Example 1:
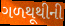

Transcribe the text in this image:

ગળથૂથીની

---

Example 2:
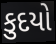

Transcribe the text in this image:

કુદયો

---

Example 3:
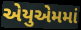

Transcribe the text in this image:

એયુએમમાં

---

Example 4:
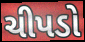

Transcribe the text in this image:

ચીપડો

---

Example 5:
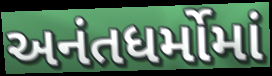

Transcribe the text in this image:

અનંતધર્મોમાં